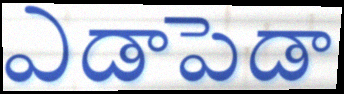
ఎడాపెడా